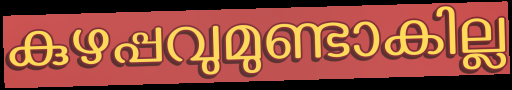
കുഴപ്പവുമുണ്ടാകില്ല